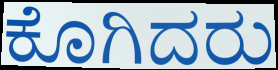
ಕೊಗಿದರು